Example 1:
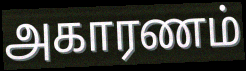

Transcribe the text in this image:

அகாரணம்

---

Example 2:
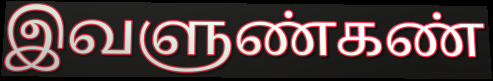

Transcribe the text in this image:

இவளுண்கண்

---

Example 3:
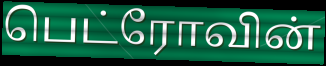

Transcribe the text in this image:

பெட்ரோவின்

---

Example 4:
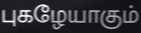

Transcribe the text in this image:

புகழேயாகும்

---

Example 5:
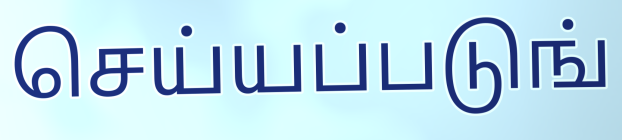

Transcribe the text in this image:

செய்யப்படுங்